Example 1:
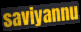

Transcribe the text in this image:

saviyannu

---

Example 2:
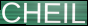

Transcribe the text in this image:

CHEIL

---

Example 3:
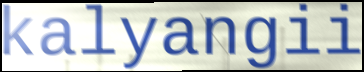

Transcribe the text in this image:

kalyangii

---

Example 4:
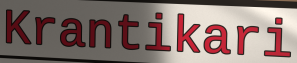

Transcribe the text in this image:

Krantikari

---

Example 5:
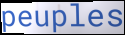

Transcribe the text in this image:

peuples